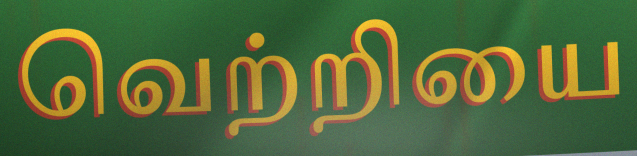
வெற்றியை